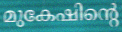
മുകേഷിന്റെ